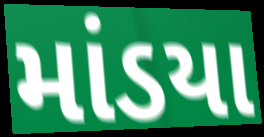
માંડયા